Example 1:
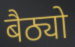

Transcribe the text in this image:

बैठ्यो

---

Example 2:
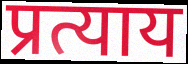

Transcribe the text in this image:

प्रत्याय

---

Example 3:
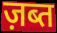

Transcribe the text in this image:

ज़ब्त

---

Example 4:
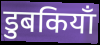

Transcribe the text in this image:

डुबकियाँ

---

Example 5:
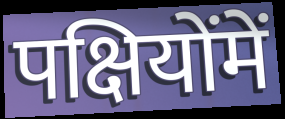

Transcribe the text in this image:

पक्षियोंमें